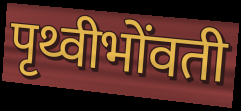
पृथ्वीभोंवती